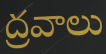
ద్రవాలు